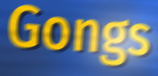
Gongs